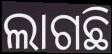
ଲାଗଛି